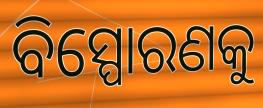
ବିସ୍ପୋରଣକୁ